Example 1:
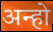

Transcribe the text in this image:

अन्हो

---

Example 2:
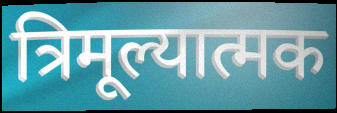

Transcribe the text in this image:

त्रिमूल्यात्मक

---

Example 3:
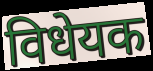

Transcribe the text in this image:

विधेयक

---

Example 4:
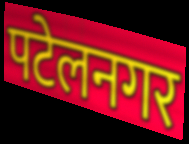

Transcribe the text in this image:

पटेलनगर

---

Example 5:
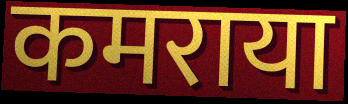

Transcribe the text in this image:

कमराया